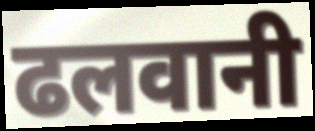
ढलवानी